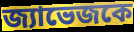
জ্যাভেজকে